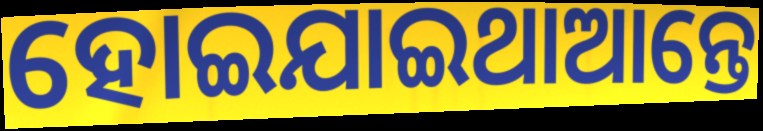
ହୋଇଯାଇଥାଆନ୍ତେ